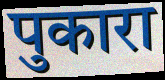
पुकारा